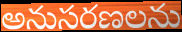
అనుసరణలను